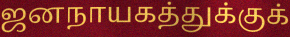
ஜனநாயகத்துக்குக்